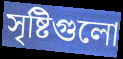
সৃষ্টিগুলো